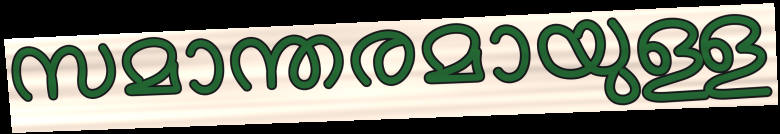
സമാന്തരമായുള്ള